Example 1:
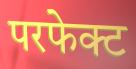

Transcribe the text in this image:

परफेक्ट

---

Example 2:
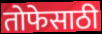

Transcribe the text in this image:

तोफेसाठी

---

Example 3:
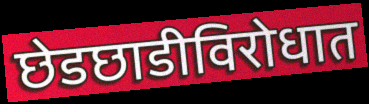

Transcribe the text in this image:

छेडछाडीविरोधात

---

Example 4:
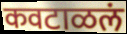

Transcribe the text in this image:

कवटाळलं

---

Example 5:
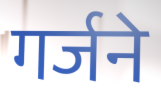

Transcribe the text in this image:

गर्जने